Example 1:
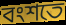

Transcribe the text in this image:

বংশতে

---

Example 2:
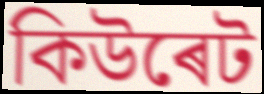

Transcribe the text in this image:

কিউৰেট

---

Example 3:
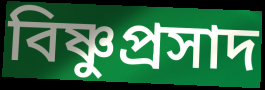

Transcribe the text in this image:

বিষ্ণুপ্ৰসাদ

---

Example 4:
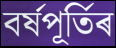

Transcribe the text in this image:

বৰ্ষপূৰ্তিৰ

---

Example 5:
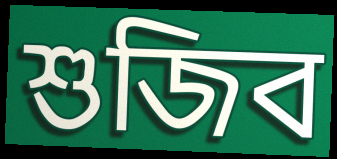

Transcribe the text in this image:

শুজিব